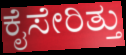
ಕೈಸೇರಿತ್ತು